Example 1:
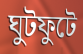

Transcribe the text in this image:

ঘুটফুটে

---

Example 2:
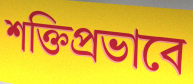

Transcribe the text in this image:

শক্তিপ্রভাবে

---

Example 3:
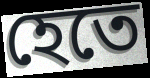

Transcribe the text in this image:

হেতে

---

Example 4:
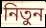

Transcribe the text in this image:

নিতুন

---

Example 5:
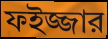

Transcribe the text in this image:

ফইজ্জার